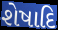
શેષાદિ